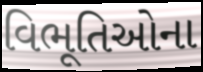
વિભૂતિઓના